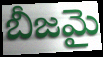
బీజమై